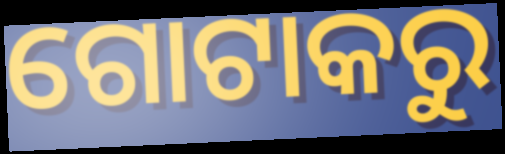
ଗୋଟାକରୁ